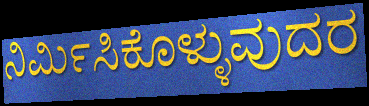
ನಿರ್ಮಿಸಿಕೊಳ್ಳುವುದರ